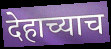
देहाच्याच